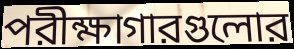
পরীক্ষাগারগুলোর